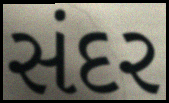
સંદર